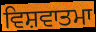
ਵਿਸ਼ਵਾਤਮਾ